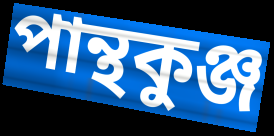
পান্থকুঞ্জ